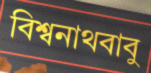
বিশ্বনাথবাবু